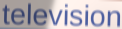
television